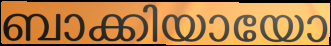
ബാക്കിയായോ